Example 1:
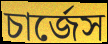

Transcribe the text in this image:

চার্জেস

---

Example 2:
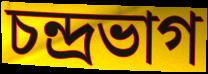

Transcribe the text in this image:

চন্দ্রভাগ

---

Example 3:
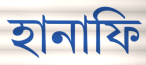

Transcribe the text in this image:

হানাফি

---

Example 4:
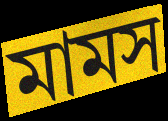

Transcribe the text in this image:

মামস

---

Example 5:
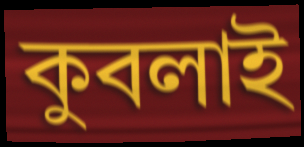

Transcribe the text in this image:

কুবলাই